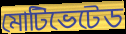
মোটিভেটেড